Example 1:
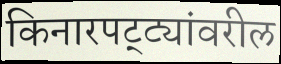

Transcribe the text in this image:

किनारपट्ट्यांवरील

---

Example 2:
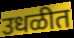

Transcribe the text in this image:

उधळीत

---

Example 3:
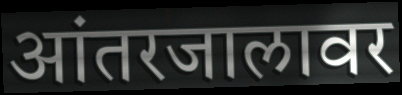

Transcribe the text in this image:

आंतरजालावर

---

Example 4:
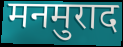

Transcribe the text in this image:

मनमुराद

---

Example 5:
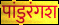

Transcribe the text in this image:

पांडुरंगश